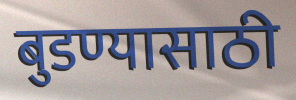
बुडण्यासाठी